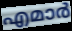
എമാർ